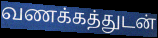
வணக்கத்துடன்